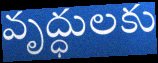
వృద్ధులకు